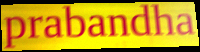
prabandha